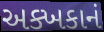
અક્ખકાનં